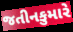
જતીનકુમારે